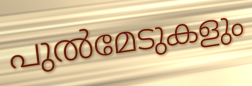
പുൽമേടുകളും